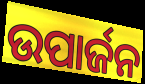
ଉପାର୍ଜନ